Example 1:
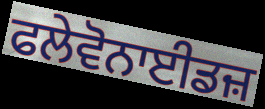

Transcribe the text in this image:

ਫਲੇਵੋਨਾਈਡਜ਼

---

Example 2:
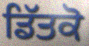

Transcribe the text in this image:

ਡਿੱਤਕੋ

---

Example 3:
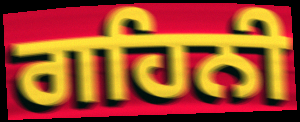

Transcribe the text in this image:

ਗਹਿਨੀ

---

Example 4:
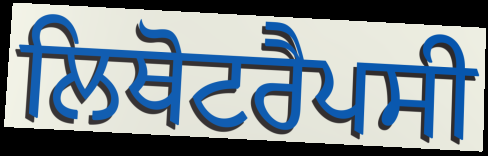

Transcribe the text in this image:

ਲਿਥੋਟਰੈਪਸੀ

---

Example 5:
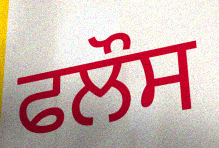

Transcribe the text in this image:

ਫਲੌਸ